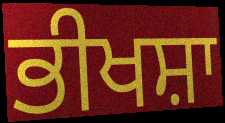
ਭੀਖਸ਼ਾ